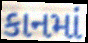
કાનમાં